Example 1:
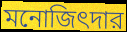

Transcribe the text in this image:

মনোজিৎদার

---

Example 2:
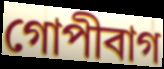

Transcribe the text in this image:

গোপীবাগ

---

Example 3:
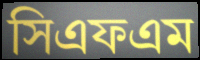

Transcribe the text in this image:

সিএফএম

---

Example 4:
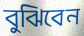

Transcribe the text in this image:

বুঝিবেন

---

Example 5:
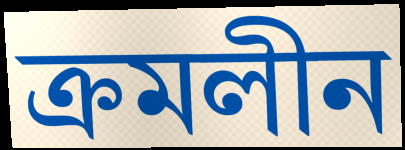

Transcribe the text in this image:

ক্রমলীন